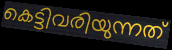
കെട്ടിവരിയുന്നത്